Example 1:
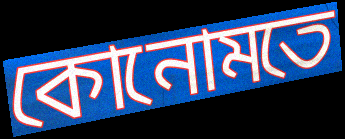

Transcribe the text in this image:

কোনোমতে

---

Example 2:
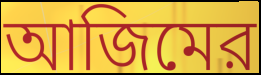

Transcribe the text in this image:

আজিমের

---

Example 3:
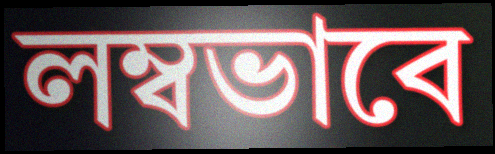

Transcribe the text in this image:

লম্বভাবে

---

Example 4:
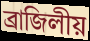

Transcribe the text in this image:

ব্রাজিলীয়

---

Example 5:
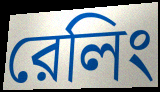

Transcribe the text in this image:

রেলিং